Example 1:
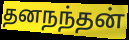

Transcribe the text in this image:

தனநந்தன்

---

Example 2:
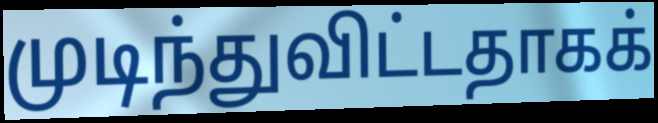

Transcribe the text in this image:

முடிந்துவிட்டதாகக்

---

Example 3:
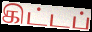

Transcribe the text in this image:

கிட்டப்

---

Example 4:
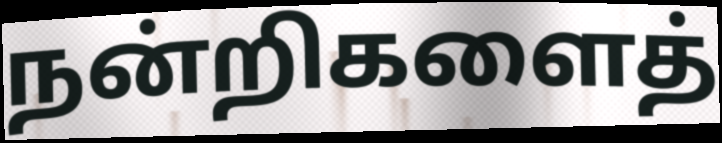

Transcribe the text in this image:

நன்றிகளைத்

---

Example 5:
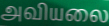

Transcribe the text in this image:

அவியலை